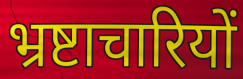
भ्रष्टाचारियों